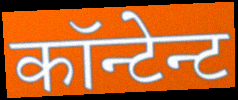
कॉन्टेन्ट